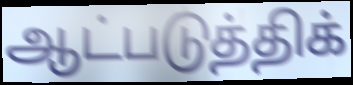
ஆட்படுத்திக்